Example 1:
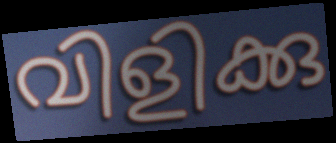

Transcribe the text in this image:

വിളിക്കു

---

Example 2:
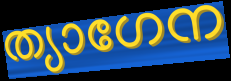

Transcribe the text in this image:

ത്യാഗേന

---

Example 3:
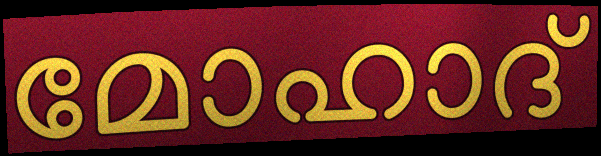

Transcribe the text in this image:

മോഹാദ്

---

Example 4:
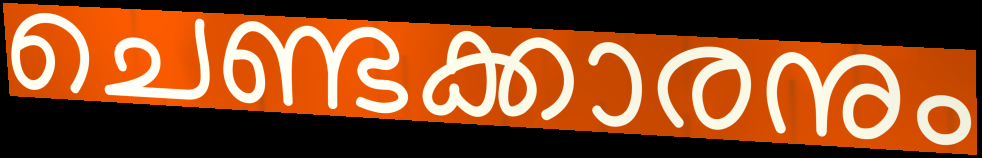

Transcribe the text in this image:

ചെണ്ടക്കാരനും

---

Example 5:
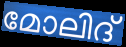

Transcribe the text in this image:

മോലിദ്